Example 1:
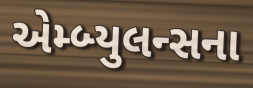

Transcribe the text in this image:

એમ્બ્યુલન્સના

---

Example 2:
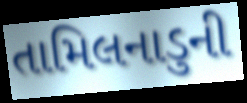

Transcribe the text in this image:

તામિલનાડુની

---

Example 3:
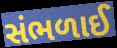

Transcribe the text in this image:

સંભળાઈ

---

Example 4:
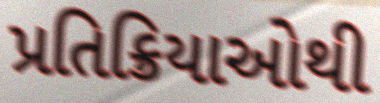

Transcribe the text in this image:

પ્રતિક્રિયાઓથી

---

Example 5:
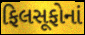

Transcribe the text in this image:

ફિલસૂફોનાં